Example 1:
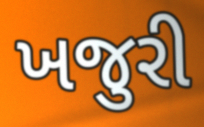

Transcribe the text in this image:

ખજુરી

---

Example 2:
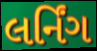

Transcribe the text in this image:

લર્નિંગ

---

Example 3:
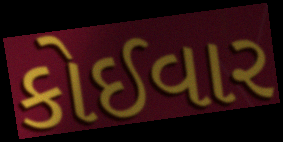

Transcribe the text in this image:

કોઈવાર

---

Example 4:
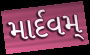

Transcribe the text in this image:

માર્દવમ્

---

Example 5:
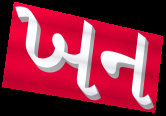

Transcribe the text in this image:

ખન